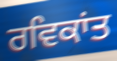
ਰਵਿਕਾਂਤ